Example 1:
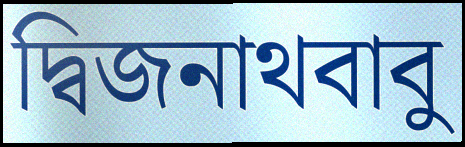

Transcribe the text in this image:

দ্বিজনাথবাবু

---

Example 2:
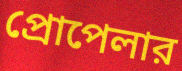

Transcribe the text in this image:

প্রোপেলার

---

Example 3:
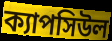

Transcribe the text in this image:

ক্যাপসিউল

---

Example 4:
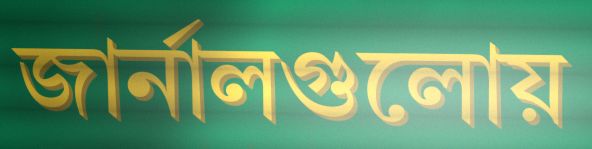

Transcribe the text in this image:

জার্নালগুলোয়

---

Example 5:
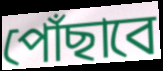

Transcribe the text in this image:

পোঁছাবে